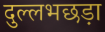
दुल्लभछड़ा